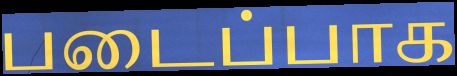
படைப்பாக